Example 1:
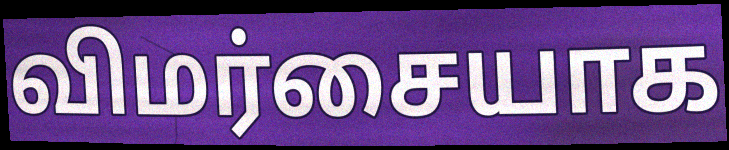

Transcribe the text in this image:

விமர்சையாக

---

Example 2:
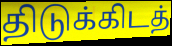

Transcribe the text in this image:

திடுக்கிடத்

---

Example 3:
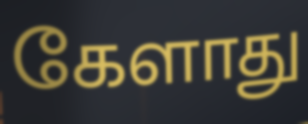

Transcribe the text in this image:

கேளாது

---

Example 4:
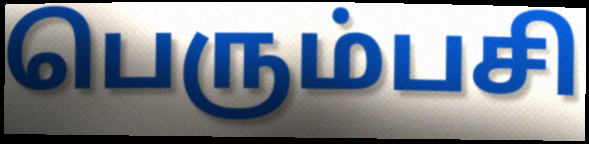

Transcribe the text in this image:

பெரும்பசி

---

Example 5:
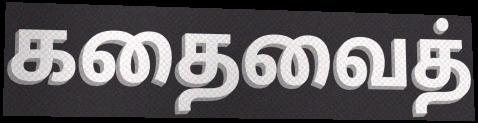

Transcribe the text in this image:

கதைவைத்